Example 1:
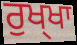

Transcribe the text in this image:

ਰੁਖ੍ਖਾ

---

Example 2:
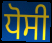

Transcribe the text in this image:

ਧੋਸੀ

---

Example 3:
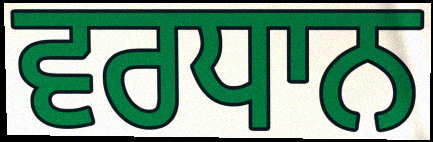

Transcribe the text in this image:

ਵਰਧਾਨ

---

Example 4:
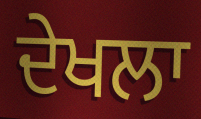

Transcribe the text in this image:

ਦੇਖਲਾ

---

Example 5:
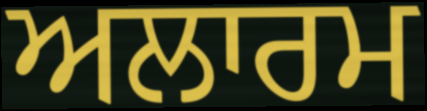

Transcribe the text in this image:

ਅਲਾਰਮ